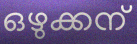
ഒഴുക്കന്